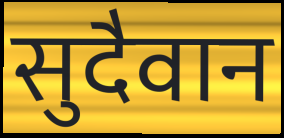
सुदैवान